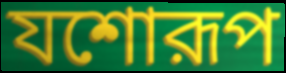
যশোরূপ